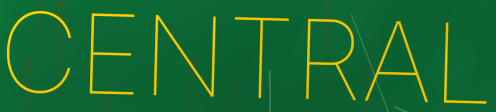
CENTRAL